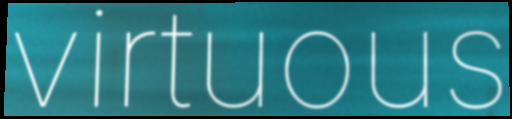
virtuous